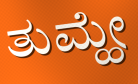
ತುಮ್ಹೇ